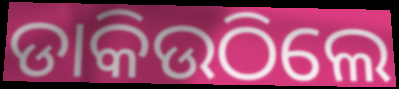
ଡାକିଉଠିଲେ